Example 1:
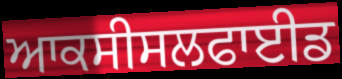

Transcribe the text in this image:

ਆਕਸੀਸਲਫਾਈਡ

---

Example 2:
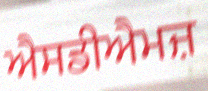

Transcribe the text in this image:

ਐਸਡੀਐਮਜ਼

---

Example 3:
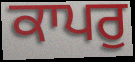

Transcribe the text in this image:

ਕਾਪਰੁ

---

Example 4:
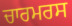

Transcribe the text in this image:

ਚਾਰਮਰਸ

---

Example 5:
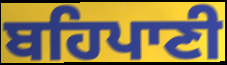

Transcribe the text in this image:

ਬਹਿਪਾਣੀ